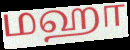
மஹா